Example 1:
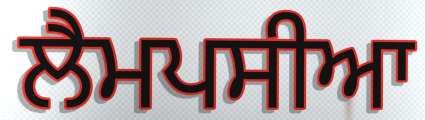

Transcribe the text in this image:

ਲੈਮਪਸੀਆ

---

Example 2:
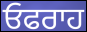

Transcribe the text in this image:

ਓਫਰਾਹ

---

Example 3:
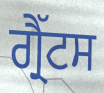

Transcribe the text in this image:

ਗ੍ਰੈੱਟਸ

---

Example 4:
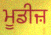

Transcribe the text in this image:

ਮੂਡੀਜ਼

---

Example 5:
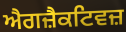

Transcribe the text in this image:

ਐਗਜ਼ੈਕਟਿਵਜ਼